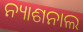
ନ୍ୟାଶନାଲ